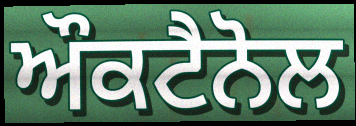
ਔਕਟੈਨੋਲ